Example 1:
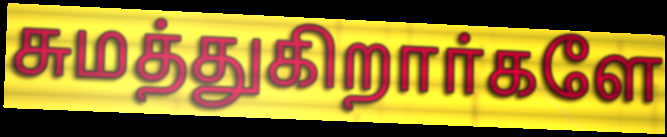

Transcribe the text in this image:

சுமத்துகிறார்களே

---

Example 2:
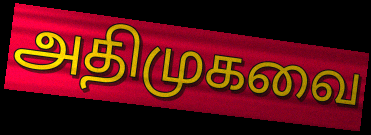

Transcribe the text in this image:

அதிமுகவை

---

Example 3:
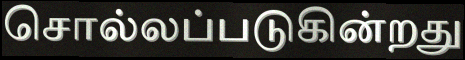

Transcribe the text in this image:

சொல்லப்படுகின்றது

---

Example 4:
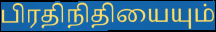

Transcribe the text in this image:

பிரதிநிதியையும்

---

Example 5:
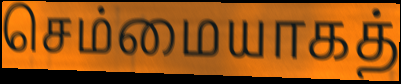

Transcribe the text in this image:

செம்மையாகத்